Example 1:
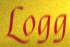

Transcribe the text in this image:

Logg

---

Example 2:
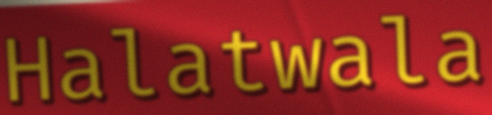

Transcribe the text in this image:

Halatwala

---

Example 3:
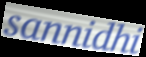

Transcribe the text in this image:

sannidhi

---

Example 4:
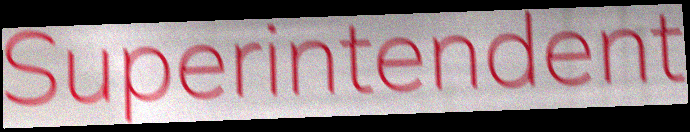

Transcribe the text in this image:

Superintendent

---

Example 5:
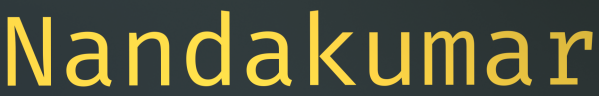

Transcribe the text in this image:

Nandakumar